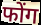
फोंग